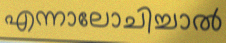
എന്നാലോചിച്ചാൽ